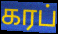
கரப்